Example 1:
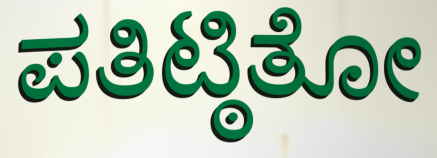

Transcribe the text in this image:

ಪತಿಟ್ಠಿತೋ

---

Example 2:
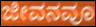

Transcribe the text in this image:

ಜೀವನವೂ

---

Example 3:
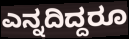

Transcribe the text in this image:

ಎನ್ನದಿದ್ದರೂ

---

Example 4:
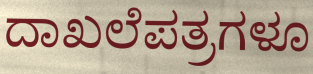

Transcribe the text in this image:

ದಾಖಲೆಪತ್ರಗಳೂ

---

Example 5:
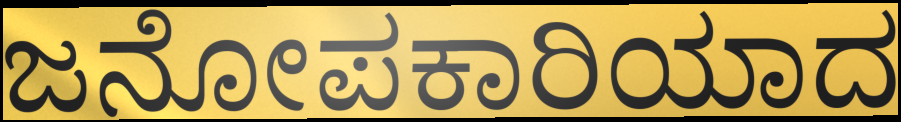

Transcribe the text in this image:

ಜನೋಪಕಾರಿಯಾದ